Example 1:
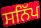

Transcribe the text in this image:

ਸਨਿੱਪ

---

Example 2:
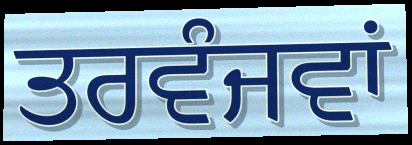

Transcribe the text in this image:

ਤਰਵੰਜਵਾਂ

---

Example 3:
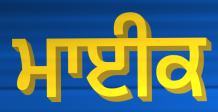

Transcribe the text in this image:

ਮਾਈਕ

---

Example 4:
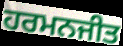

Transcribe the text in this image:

ਹਰਮਨਜੀਤ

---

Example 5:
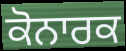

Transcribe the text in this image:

ਕੋਨਾਰਕ